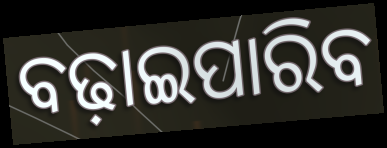
ବଢ଼ାଇପାରିବ